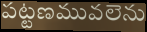
పట్టణమువలెను